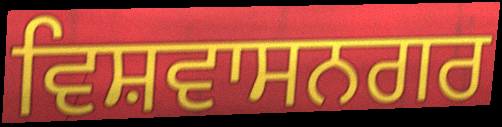
ਵਿਸ਼ਵਾਸਨਗਰ